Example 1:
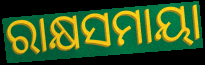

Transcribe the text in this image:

ରାକ୍ଷସମାୟା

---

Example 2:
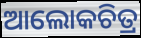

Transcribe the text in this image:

ଆଲୋକଚିତ୍ର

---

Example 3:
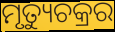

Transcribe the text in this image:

ମୃତ୍ୟୁଚକ୍ରର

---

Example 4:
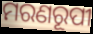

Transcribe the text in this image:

ମରଣରୂପୀ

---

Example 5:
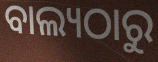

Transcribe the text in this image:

ବାଲ୍ୟଠାରୁ